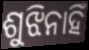
ଶୁଝିନାହିଁ